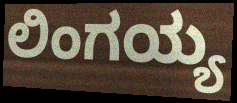
ಲಿಂಗಯ್ಯ